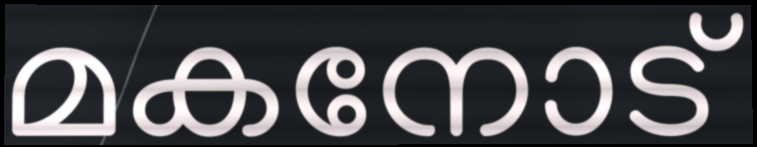
മകനോട്